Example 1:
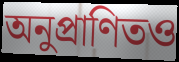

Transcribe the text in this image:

অনুপ্রাণিতও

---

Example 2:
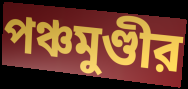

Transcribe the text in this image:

পঞ্চমুণ্ডীর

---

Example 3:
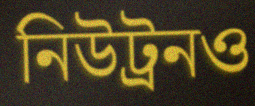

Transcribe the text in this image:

নিউট্রনও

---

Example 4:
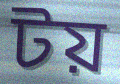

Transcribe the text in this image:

টয়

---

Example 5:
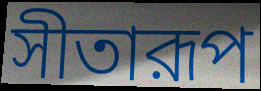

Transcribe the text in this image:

সীতারূপ